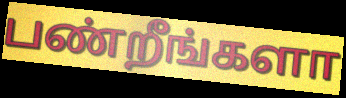
பண்றீங்களா